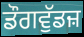
ਡੌਗਵੁੱਡਜ਼